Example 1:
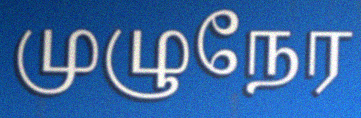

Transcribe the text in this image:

முழுநேர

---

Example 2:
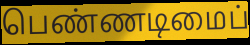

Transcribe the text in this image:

பெண்ணடிமைப்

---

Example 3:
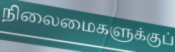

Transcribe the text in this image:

நிலைமைகளுக்குப்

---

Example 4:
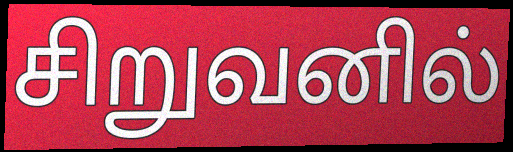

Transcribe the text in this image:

சிறுவனில்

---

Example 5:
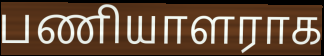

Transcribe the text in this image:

பணியாளராக